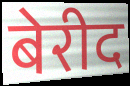
बेरीद